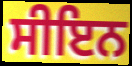
ਸੀਇਨ